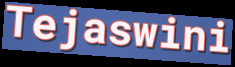
Tejaswini